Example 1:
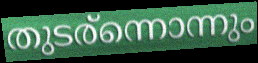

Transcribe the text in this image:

തുടര്ന്നൊന്നും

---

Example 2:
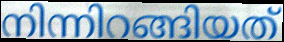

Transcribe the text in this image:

നിന്നിറങ്ങിയത്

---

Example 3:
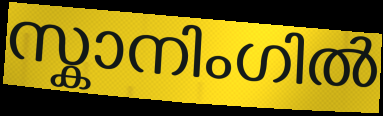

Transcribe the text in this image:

സ്കാനിംഗിൽ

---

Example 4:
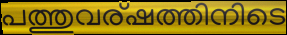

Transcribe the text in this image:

പത്തുവര്ഷത്തിനിടെ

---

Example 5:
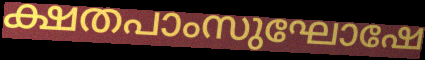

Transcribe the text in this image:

ക്ഷതപാംസുഘോഷേ